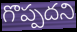
గొప్పదని